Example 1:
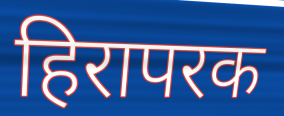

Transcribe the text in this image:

हिरापरक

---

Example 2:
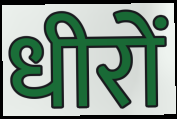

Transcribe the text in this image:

धीरों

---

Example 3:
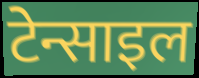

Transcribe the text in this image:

टेन्साइल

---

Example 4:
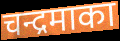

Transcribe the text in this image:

चन्द्रमाका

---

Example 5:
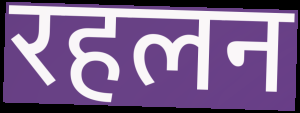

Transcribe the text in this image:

रहलन